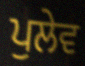
ਪੁਲੇਵ